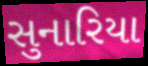
સુનારિયા